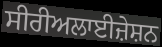
ਸੀਰੀਅਲਾਈਜ਼ੇਸ਼ਨ